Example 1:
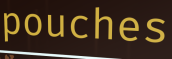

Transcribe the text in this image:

pouches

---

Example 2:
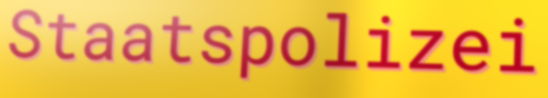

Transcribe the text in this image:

Staatspolizei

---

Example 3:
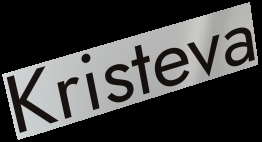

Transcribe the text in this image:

Kristeva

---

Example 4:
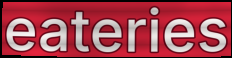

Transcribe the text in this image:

eateries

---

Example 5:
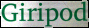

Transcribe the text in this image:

Giripod